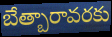
బేత్బారావరకు